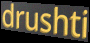
drushti